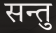
सन्‍तु